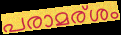
പരാമര്ശം